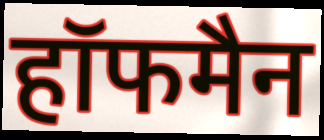
हॉफमैन